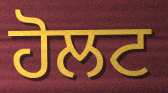
ਹੋਲਟ